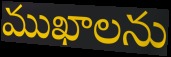
ముఖాలను